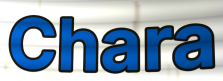
Chara